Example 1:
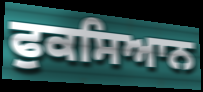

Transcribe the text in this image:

ਫੁਕਸਿਆਨ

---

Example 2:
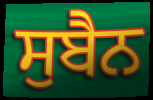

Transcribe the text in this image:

ਸੁਬੈਨ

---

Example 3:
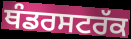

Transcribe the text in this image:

ਥੰਡਰਸਟਰੱਕ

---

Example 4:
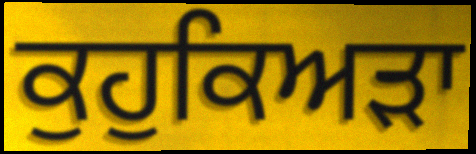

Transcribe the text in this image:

ਕੁਹੁਕਿਅੜਾ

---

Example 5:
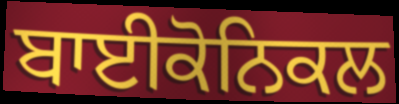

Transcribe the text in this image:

ਬਾਈਕੋਨਿਕਲ